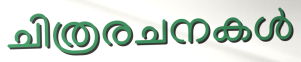
ചിത്രരചനകൾ